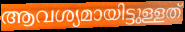
ആവശ്യമായിട്ടുള്ളത്